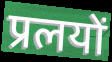
प्रलयों